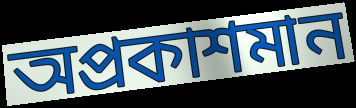
অপ্রকাশমান